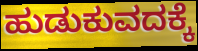
ಹುಡುಕುವದಕ್ಕೆ